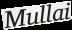
Mullai